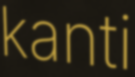
kanti